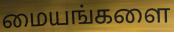
மையங்களை